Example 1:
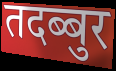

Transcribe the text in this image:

तदब्बुर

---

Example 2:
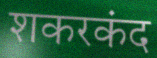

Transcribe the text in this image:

शकरकंद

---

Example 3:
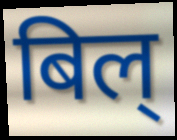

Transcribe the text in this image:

बिल्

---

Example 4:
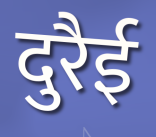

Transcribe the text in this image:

दुरैई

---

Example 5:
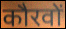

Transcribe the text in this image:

कौरवों